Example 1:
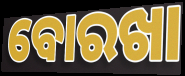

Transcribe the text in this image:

ବୋରଖା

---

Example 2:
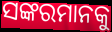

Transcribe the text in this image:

ସଙ୍କରମାନକୁ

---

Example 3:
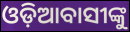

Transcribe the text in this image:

ଓଡ଼ିଆବାସୀଙ୍କୁ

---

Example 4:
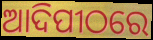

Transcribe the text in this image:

ଆଦିପୀଠରେ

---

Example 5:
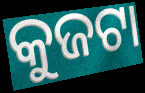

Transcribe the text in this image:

କୁଜଟା